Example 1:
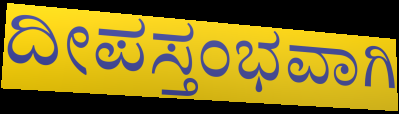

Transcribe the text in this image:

ದೀಪಸ್ತಂಭವಾಗಿ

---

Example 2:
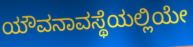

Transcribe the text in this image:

ಯೌವನಾವಸ್ಥೆಯಲ್ಲಿಯೇ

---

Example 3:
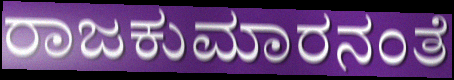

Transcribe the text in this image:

ರಾಜಕುಮಾರನಂತೆ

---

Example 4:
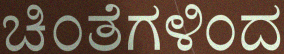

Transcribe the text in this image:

ಚಿಂತೆಗಳಿಂದ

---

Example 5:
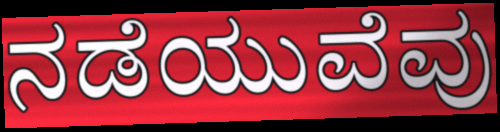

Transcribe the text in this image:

ನಡೆಯುವೆವು